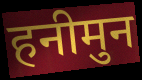
हनीमुन